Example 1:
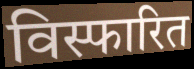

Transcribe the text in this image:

विस्फारित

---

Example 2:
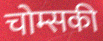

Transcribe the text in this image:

चोम्सकी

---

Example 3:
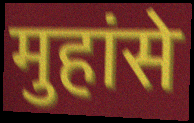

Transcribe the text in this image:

मुहांसे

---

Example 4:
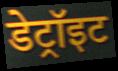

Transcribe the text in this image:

डेट्रॉइट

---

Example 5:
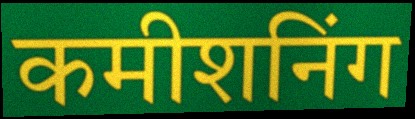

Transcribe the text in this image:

कमीशनिंग